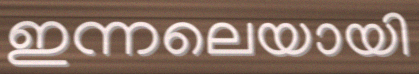
ഇന്നലെയായി